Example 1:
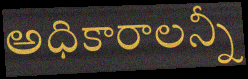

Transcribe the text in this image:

అధికారాలన్నీ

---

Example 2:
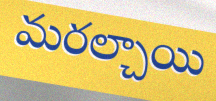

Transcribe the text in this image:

మరల్చాయి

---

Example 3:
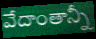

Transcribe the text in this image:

వేదాంతాన్నీ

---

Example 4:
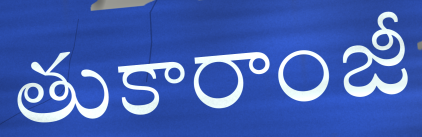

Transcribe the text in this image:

తుకారాంజీ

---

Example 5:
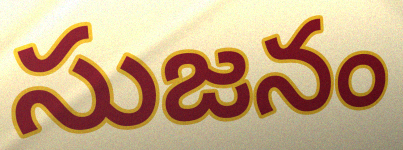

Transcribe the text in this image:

సుజనం